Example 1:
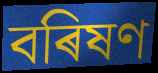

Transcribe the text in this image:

বৰিষণ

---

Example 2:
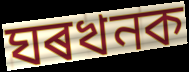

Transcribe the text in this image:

ঘৰখনক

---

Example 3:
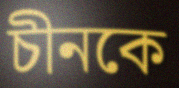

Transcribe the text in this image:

চীনকে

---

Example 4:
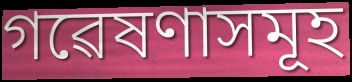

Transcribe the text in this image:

গৱেষণাসমূহ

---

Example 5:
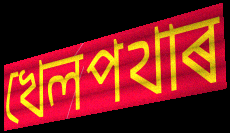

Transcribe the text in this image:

খেলপথাৰ